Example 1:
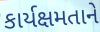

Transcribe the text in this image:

કાર્યક્ષમતાને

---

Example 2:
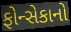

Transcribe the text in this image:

ફોન્સેકાનો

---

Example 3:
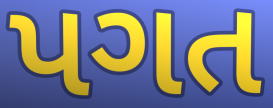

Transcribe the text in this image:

પગત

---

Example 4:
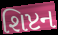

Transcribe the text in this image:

શિપ્ટન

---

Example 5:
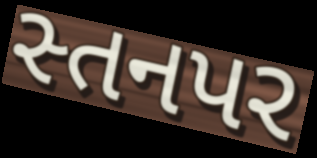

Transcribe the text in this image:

સ્તનપર